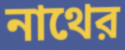
নাথের